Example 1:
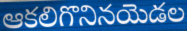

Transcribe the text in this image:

ఆకలిగొనినయెడల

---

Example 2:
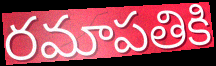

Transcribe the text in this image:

రమాపతికి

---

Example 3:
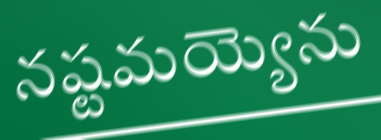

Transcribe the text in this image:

నష్టమయ్యెను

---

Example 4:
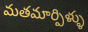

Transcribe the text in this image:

మతమార్పిళ్ళు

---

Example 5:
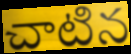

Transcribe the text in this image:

చాటిన